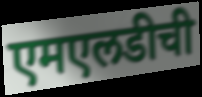
एमएलडीची